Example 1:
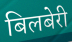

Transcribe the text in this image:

बिलबेरी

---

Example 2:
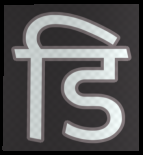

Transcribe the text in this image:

डि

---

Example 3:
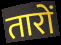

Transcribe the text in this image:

तारों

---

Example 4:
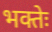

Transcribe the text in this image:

भक्तेः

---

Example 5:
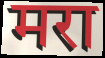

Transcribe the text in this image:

मरा